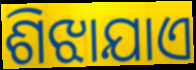
ଶିଝାଯାଏ